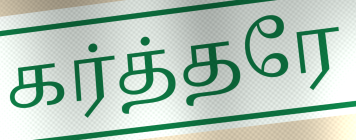
கர்த்தரே